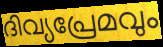
ദിവ്യപ്രേമവും